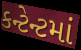
કન્ટેન્ટમાં